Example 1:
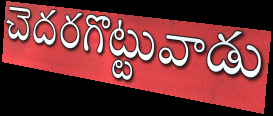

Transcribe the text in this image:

చెదరగొట్టువాడు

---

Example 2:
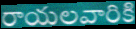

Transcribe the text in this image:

రాయలవారికి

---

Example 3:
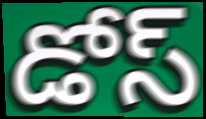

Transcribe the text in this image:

డోస్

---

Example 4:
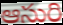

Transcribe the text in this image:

ఆసురి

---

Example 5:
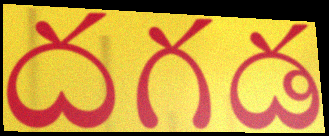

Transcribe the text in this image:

దగడ